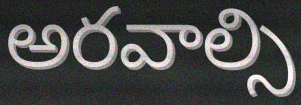
అరవాల్సి